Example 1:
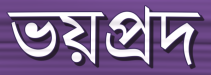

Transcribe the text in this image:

ভয়প্রদ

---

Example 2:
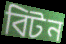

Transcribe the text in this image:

বিটন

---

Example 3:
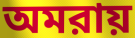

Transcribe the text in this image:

অমরায়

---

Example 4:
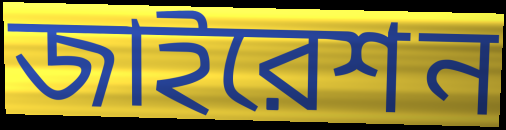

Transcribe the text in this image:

জাইরেশন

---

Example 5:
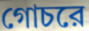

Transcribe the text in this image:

গোচরে